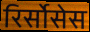
रिर्सोसेस